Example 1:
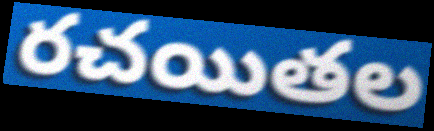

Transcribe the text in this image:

రచయితల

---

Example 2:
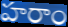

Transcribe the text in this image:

హరాం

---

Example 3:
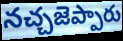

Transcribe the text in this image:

నచ్చజెప్పారు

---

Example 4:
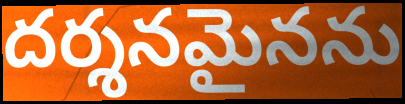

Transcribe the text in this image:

దర్శనమైనను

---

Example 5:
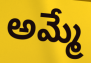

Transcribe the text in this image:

అమ్మే